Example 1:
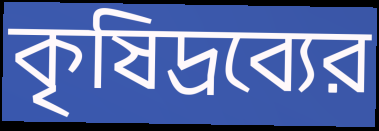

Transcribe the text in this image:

কৃষিদ্রব্যের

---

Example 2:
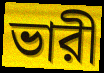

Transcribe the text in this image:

ভারী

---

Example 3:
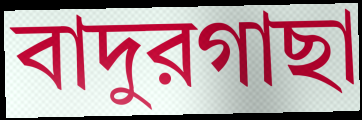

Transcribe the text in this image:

বাদুরগাছা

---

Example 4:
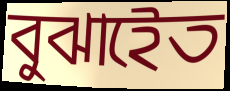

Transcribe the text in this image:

বুঝাইেত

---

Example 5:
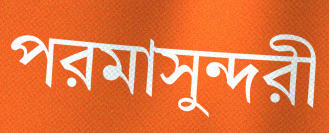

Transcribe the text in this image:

পরমাসুন্দরী